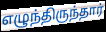
எழுந்திருந்தார்